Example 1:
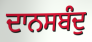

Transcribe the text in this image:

ਦਾਨਸਬੰਦੁ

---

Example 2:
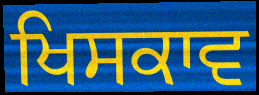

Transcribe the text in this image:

ਖਿਸਕਾਵ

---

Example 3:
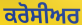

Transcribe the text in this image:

ਕਰੋਸੀਅਰ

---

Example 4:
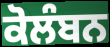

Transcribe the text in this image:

ਕੋਲੰਬਨ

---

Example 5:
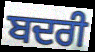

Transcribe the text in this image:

ਬਦਰੀ